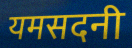
यमसदनी